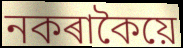
নকৰাকৈয়ে